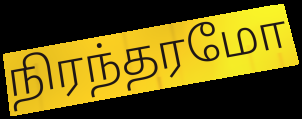
நிரந்தரமோ